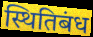
स्थितिबंध